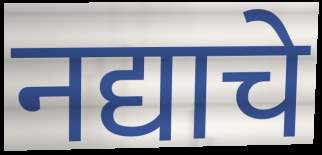
नद्याचे